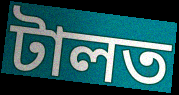
টালত